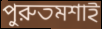
পুরুতমশাই